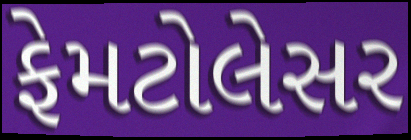
ફેમટોલેસર